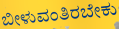
ಬೀಳುವಂತಿರಬೇಕು